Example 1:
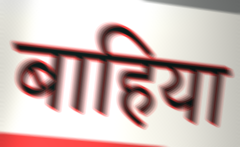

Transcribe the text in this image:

बाहिया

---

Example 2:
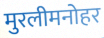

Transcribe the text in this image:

मुरलीमनोहर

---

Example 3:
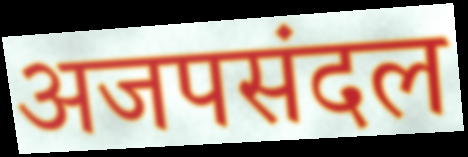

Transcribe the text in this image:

अजपसंदल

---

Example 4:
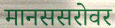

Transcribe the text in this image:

मानससरोवर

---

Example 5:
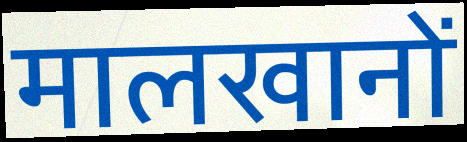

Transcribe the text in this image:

मालखानों